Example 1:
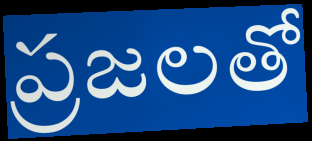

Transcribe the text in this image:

ప్రజలతో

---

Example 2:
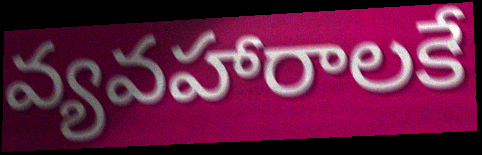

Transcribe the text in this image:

వ్యవహారాలకే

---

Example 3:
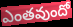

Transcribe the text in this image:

ఎంతవుందో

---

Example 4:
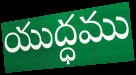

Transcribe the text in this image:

యుద్ధము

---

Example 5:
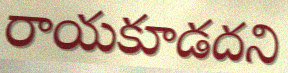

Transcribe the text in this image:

రాయకూడదని